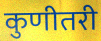
कुणीतरी